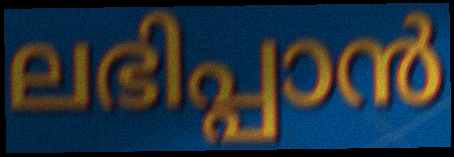
ലഭിപ്പാൻ